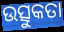
ଉତ୍ସୁକତା